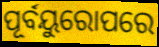
ପୂର୍ବୟୁରୋପରେ